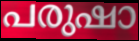
പരുഷാ